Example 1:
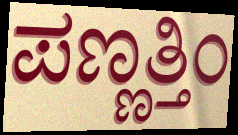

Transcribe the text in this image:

ಪಣ್ಣತ್ತಿಂ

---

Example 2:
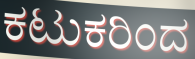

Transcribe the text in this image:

ಕಟುಕರಿಂದ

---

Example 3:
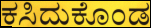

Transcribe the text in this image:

ಕಸಿದುಕೊಂಡ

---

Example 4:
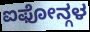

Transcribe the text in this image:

ಐಫೋನ್ಗಳ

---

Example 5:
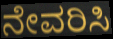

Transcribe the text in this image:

ನೇವರಿಸಿ